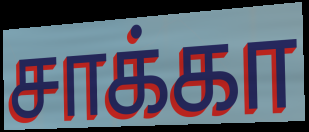
சாக்கா